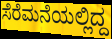
ಸೆರೆಮನೆಯಲ್ಲಿದ್ದ